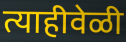
त्याहीवेळी